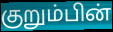
குறும்பின்